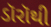
ડૉરૉથી